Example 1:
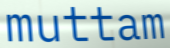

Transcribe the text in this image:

muttam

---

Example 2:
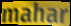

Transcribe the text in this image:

mahar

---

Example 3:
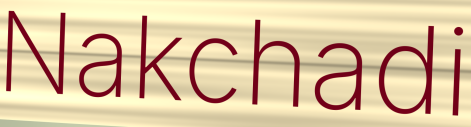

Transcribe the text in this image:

Nakchadi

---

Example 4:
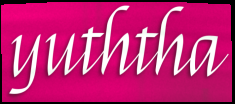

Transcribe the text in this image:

yuththa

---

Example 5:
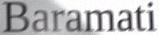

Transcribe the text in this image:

Baramati